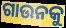
ଗାଉନକୁ